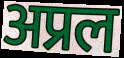
अप्रल